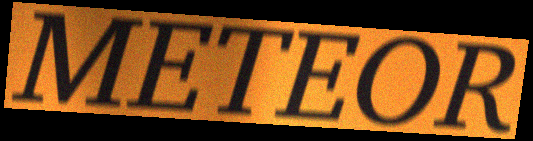
METEOR